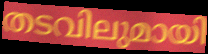
തടവിലുമായി